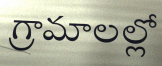
గ్రామాలల్లో